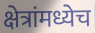
क्षेत्रांमध्येच